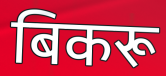
बिकरू